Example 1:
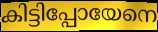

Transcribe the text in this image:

കിട്ടിപ്പോയേനെ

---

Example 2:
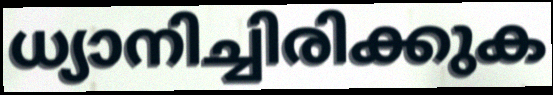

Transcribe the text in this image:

ധ്യാനിച്ചിരിക്കുക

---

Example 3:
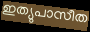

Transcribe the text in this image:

ഇത്യുപാസീത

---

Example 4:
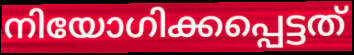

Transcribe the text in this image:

നിയോഗിക്കപ്പെട്ടത്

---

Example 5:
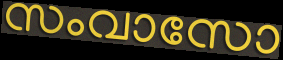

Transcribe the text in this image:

സംവാസോ